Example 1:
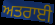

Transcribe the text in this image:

ਅਤਰਾਈ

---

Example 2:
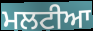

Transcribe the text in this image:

ਮਲਟੀਆ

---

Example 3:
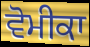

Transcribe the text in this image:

ਵੋਮੀਕਾ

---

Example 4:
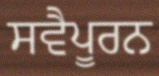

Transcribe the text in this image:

ਸਵੈਪੂਰਨ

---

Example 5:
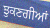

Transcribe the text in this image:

ਝੁਕਣਗੀਆਂ